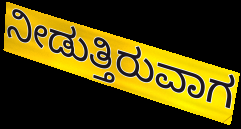
ನೀಡುತ್ತಿರುವಾಗ